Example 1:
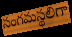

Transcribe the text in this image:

సంగమస్థలిగా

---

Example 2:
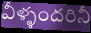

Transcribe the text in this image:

వీళ్ళందరినీ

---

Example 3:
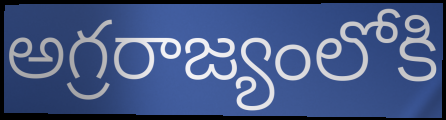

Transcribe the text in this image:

అగ్రరాజ్యంలోకి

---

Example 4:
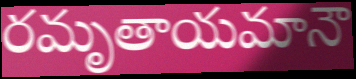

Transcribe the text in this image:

రమృతాయమానౌ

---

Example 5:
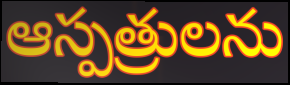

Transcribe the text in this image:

ఆస్పత్రులను